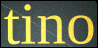
tino